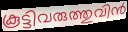
കൂട്ടിവരുത്തുവിൻ